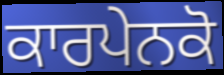
ਕਾਰਪੇਨਕੋ